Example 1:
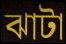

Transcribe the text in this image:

ঝাটা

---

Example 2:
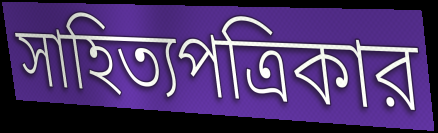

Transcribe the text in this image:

সাহিত্যপত্রিকার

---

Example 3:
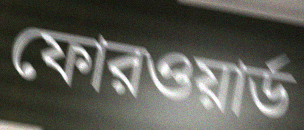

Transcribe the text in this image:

ফোরওয়ার্ড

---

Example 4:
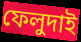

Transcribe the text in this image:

ফেলুদাই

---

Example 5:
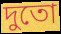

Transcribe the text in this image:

দুতো